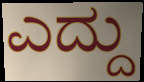
ಎದ್ದು